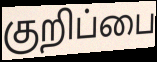
குறிப்பை